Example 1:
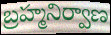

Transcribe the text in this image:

బ్రహ్మనిర్వాణ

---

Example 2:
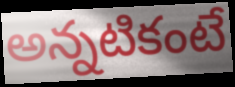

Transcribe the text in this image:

అన్నటికంటే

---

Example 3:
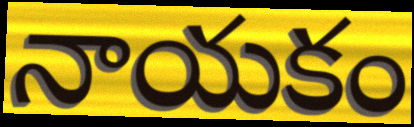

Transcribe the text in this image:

నాయకం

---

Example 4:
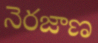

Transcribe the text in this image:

నెరజాణ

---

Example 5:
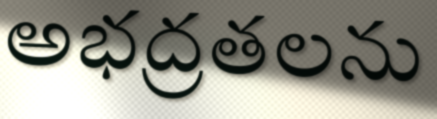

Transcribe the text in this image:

అభద్రతలను